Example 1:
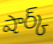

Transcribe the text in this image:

షార్క్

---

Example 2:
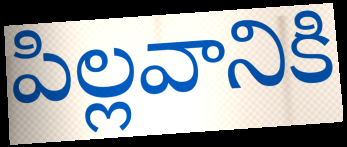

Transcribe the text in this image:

పిల్లవానికి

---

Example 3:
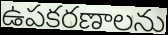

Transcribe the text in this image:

ఉపకరణాలను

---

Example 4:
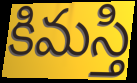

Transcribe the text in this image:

కిమస్తి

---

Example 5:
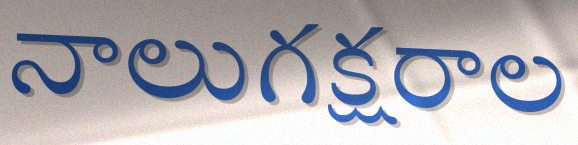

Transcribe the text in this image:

నాలుగక్షరాల